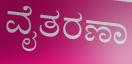
ವೈತರಣಾ